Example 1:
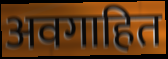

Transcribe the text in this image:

अवगाहित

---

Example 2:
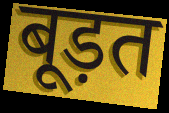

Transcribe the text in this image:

बूड़त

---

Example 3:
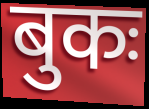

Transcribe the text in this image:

बुकः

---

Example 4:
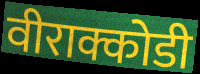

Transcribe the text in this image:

वीराक्कोडी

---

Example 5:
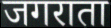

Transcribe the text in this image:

जगराता